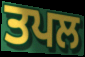
ਤਪਲ